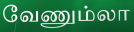
வேணும்லா